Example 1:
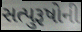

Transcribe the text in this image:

સત્પુરૂષોની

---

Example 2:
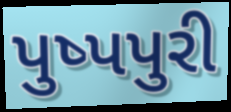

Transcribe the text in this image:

પુષ્પપુરી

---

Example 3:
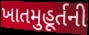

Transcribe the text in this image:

ખાતમુહૂર્તની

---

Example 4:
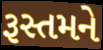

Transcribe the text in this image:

રૂસ્તમને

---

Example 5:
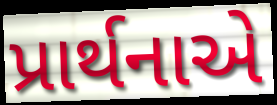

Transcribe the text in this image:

પ્રાર્થનાએ